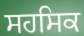
ਸਹਸਿਕ